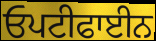
ਓਪਟੀਫਾਈਨ